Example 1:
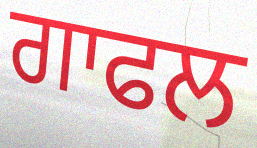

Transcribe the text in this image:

ਗਾਫਲ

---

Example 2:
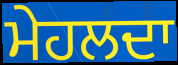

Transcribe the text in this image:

ਮੇਹਲਦਾ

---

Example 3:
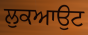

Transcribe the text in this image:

ਲੁਕਆਉਟ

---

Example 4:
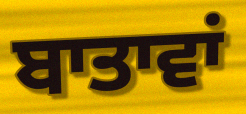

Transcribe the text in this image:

ਬਾਤਾਵਾਂ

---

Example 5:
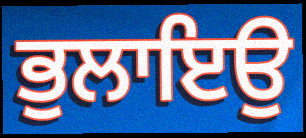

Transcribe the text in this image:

ਭੁਲਾਇਉ